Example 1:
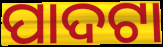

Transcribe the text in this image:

ପାଦଟା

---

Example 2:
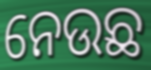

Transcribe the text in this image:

ନେଉଛ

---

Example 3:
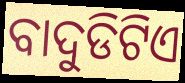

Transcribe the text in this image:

ବାଦୁଡିଟିଏ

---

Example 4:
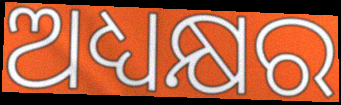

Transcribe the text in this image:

ଅଧ୍ୟକ୍ଷର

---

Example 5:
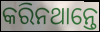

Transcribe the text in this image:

କରିନଥାନ୍ତେ